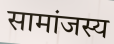
सामांजस्य